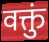
वक्तुं